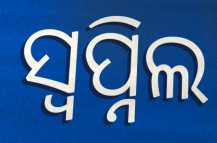
ସ୍ୱପ୍ନିଲ